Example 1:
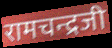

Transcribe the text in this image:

रामचन्द्रजी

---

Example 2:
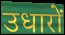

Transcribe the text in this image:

उधारों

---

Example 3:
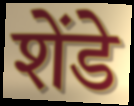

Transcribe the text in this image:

शेंडे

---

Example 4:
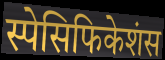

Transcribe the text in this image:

स्पेसिफिकेशंस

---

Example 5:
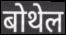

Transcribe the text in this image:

बोथेल